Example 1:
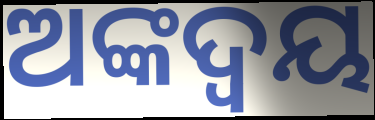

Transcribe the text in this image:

ଅଙ୍କଦ୍ବୟ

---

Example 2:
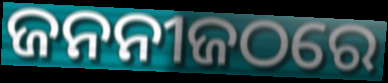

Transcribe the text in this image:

ଜନନୀଜଠରେ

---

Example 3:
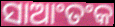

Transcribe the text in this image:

ସାଆଂତଂକ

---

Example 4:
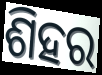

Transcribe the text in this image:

ଶିହର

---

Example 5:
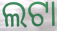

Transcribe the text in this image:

ଲଟା